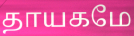
தாயகமே